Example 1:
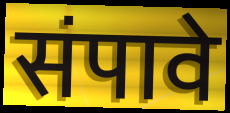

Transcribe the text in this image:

संपावे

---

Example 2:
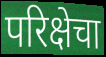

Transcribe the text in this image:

परिक्षेचा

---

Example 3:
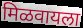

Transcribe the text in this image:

मिळवायला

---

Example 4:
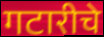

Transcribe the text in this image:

गटारीचे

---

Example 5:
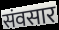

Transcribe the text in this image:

संवसार